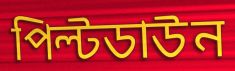
পিল্টডাউন